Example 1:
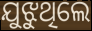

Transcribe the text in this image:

ଯୁଝୁଥିଲେ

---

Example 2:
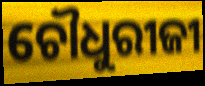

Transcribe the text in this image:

ଚୌଧୁରୀଜୀ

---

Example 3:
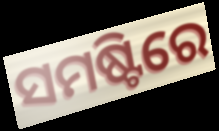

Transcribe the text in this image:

ସମଷ୍ଟିରେ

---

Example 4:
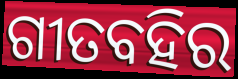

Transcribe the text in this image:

ଗୀତବହିର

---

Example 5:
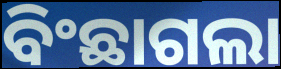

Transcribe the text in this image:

ବିଂଛାଗଲା